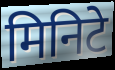
मिनिटे